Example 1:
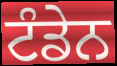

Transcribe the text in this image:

ਟੰਡੇਨ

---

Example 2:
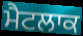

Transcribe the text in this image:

ਮੈਟਲਾਕ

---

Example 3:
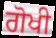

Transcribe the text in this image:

ਗੋਖੀ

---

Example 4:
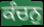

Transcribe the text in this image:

ਕੰਚਨੁ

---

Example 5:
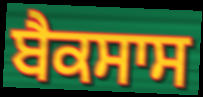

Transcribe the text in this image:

ਬੈਕਸਾਸ